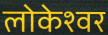
लोकेश्वर